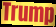
Trump